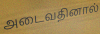
அடைவதினால்